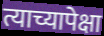
त्याच्यापेक्षा